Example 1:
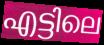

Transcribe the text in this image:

എട്ടിലെ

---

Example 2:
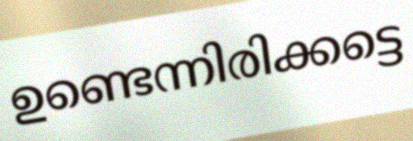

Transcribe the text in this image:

ഉണ്ടെന്നിരിക്കട്ടെ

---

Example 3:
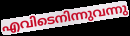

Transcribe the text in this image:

എവിടെനിന്നുവന്നു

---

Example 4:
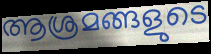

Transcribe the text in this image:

ആശ്രമങ്ങളുടെ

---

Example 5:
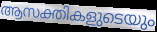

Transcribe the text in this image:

ആസക്തികളുടെയും